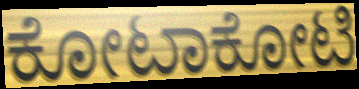
ಕೋಟಾಕೋಟಿ